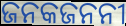
ଜନକଜନନୀ